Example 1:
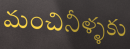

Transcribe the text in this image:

మంచినీళ్ళకు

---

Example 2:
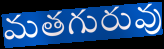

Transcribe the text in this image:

మతగురువు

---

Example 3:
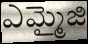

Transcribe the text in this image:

ఎమ్మైజి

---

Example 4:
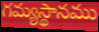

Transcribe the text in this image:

గమ్యస్థానము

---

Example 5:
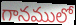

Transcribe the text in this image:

గానములో